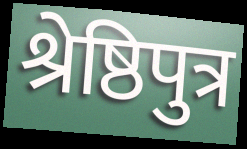
श्रेष्ठिपुत्र